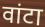
वांटा